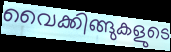
വൈക്കിങ്ങുകളുടെ